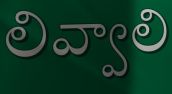
లివ్వాలి